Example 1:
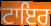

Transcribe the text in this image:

ਟਾਇਰ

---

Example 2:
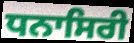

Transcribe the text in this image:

ਧਨਾਸਿਰੀ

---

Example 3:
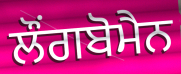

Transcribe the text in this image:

ਲੌਂਗਬੋਮੈਨ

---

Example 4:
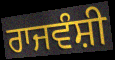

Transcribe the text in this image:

ਰਾਜਵੰਸ਼ੀ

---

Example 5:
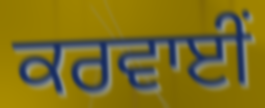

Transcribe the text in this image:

ਕਰਵਾਈਂ